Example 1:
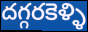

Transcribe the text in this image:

దగ్గరకెళ్ళి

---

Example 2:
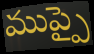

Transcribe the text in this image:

ముప్పై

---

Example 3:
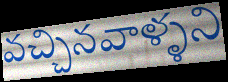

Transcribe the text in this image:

వచ్చినవాళ్ళని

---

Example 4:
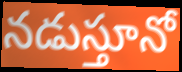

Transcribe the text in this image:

నడుస్తూనో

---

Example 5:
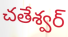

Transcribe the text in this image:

చతేశ్వర్